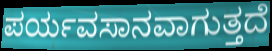
ಪರ್ಯವಸಾನವಾಗುತ್ತದೆ